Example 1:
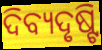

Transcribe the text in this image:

ଦିବ୍ୟଦୃଷ୍ଟି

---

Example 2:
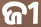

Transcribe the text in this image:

ଜୀ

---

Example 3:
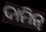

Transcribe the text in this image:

ଦାମିନ୍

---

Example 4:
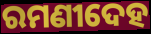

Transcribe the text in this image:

ରମଣୀଦେହ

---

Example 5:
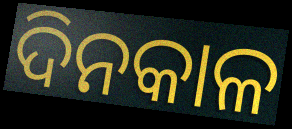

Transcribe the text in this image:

ଦିନକାଳ